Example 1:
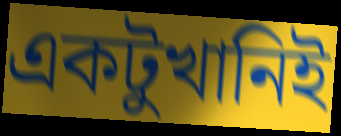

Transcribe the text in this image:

একটুখানিই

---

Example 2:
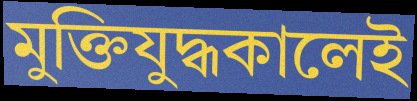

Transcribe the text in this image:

মুক্তিযুদ্ধকালেই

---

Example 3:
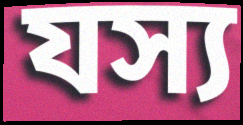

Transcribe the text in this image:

যস্য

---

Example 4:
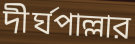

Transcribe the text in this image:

দীর্ঘপাল্লার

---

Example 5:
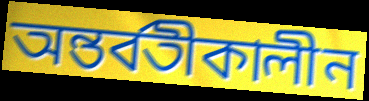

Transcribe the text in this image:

অন্তর্বতীকালীন